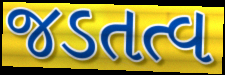
જડતત્વ